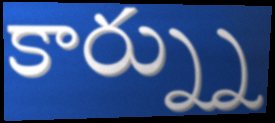
కార్న్ను